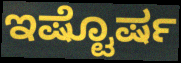
ಇಷ್ಟೊರ್ಷ